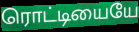
ரொட்டியையே